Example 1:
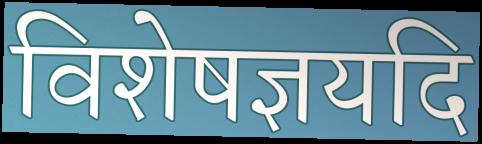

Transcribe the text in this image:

विशेषज्ञयदि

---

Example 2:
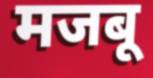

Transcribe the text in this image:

मजबू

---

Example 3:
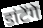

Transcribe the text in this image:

डांटेंगे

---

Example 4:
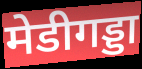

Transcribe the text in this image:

मेडीगड्डा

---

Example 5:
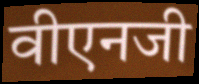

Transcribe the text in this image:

वीएनजी